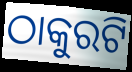
ଠାକୁରଟି